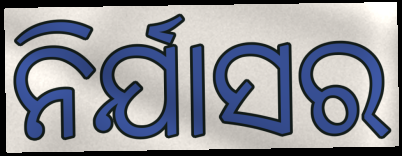
ନିର୍ଯାସର